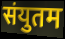
संयुतम